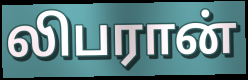
லிபரான்